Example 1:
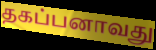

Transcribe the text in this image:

தகப்பனாவது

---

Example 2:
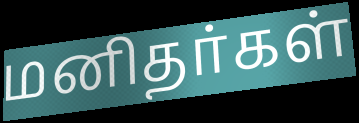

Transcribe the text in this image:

மனிதர்கள்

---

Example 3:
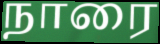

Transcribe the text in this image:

நாரை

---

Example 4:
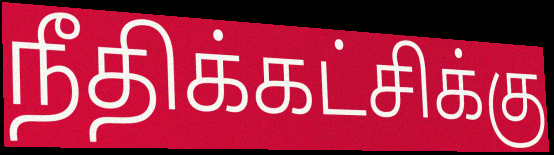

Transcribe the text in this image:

நீதிக்கட்சிக்கு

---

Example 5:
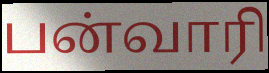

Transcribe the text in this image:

பன்வாரி